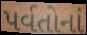
પર્વતોનાં